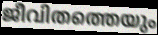
ജീവിതത്തെയും